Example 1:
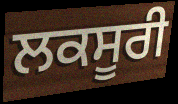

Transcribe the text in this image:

ਲਕਸੂਰੀ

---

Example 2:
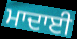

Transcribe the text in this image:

ਮਾਦਾਈ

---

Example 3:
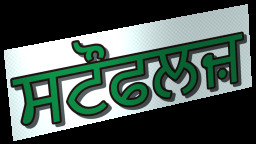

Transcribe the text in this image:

ਸਟੌਫਲਜ਼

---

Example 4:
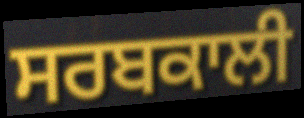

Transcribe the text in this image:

ਸਰਬਕਾਲੀ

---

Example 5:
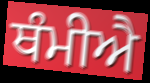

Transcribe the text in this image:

ਥੰਮੀਐ